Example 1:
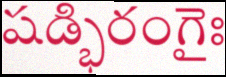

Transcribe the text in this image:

షడ్భిరంగైః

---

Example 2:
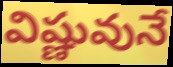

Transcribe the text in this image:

విష్ణువునే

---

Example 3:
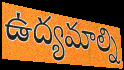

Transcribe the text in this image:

ఉద్యమాల్ని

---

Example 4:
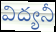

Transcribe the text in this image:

విద్యనీ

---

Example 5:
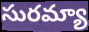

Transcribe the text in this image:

సురమ్యా